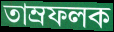
তাম্রফলক